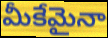
మీకేమైనా